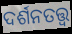
ଦର୍ଶନତତ୍ତ୍ଵ